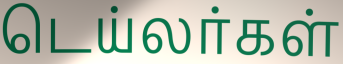
டெய்லர்கள்